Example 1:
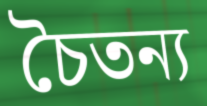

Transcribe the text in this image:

চৈতন্য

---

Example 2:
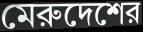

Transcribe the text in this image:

মেরুদেশের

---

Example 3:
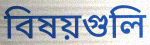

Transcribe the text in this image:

বিষয়গুলি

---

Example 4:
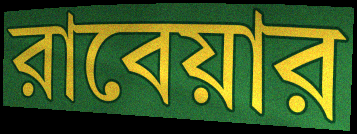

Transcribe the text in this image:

রাবেয়ার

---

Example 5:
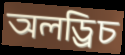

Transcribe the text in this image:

অলড্রিচ